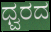
ಧ್ವರದ